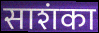
साशंका